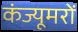
कंज्यूमरों